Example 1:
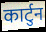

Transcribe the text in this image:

कार्टुन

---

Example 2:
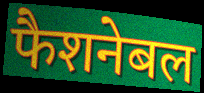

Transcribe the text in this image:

फैशनेबल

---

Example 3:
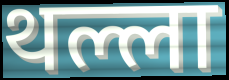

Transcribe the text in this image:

थल्ला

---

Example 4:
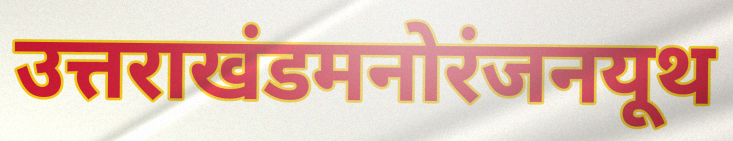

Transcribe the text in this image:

उत्तराखंडमनोरंजनयूथ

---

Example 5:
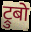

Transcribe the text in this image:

ट्रुबो